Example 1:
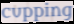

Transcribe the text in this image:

cupping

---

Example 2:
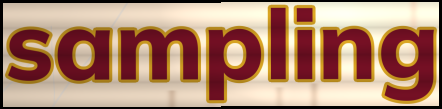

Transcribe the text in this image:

sampling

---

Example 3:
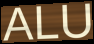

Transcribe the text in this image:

ALU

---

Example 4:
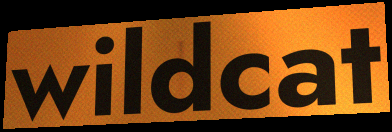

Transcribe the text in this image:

wildcat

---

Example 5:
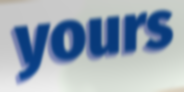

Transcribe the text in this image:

yours